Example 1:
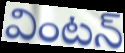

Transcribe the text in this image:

వింటన్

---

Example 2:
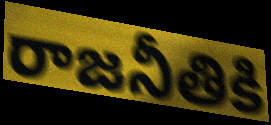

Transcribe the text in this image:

రాజనీతికి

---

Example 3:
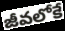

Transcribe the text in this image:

జీవలోకే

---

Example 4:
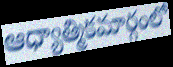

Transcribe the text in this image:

ఆధ్యాత్మికమార్గంలో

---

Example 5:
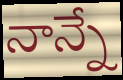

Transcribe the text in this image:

నాన్నే